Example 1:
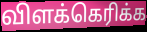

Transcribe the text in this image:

விளக்கெரிக்க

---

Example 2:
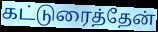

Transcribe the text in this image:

கட்டுரைத்தேன்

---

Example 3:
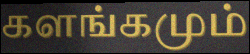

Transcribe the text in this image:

களங்கமும்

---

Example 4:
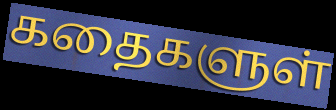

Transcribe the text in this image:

கதைகளுள்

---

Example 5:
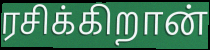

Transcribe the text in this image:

ரசிக்கிறான்